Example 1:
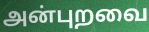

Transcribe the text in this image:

அன்புறவை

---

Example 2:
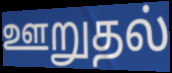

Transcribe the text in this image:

ஊறுதல்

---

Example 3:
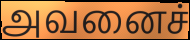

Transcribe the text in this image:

அவனைச்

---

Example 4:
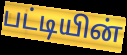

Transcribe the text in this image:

பட்டியின்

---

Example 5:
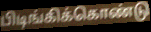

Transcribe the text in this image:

பிடிங்கிக்கொண்டு